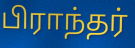
பிராந்தர்